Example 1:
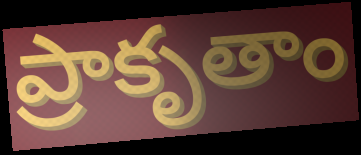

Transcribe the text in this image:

ప్రాకృతాం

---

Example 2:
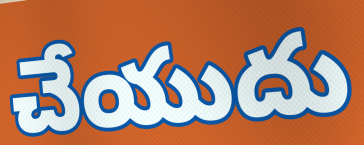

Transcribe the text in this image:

చేయుదు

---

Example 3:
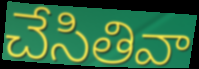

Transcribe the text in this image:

చేసితివా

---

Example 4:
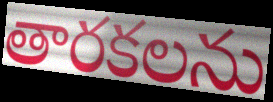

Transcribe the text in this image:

తారకలను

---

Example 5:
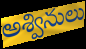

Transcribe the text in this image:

అశ్వినులు